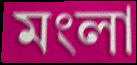
মংলা